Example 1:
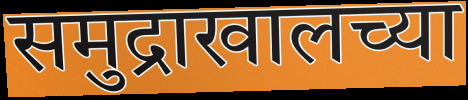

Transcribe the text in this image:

समुद्राखालच्या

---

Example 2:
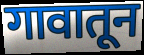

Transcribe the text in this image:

गावातून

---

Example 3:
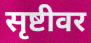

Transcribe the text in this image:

सृष्टीवर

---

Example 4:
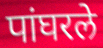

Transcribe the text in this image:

पांघरले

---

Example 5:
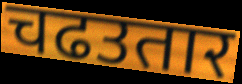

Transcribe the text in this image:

चढउतार